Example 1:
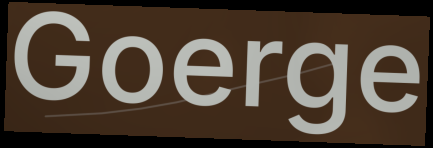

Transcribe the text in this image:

Goerge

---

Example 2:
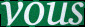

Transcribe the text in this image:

vous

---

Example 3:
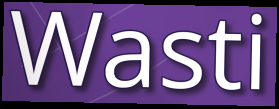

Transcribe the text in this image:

Wasti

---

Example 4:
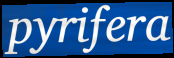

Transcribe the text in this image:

pyrifera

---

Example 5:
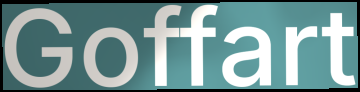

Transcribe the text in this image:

Goffart